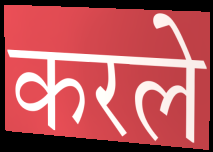
करले